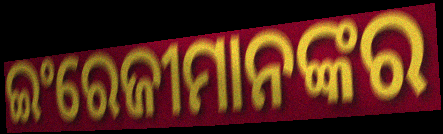
ଇଂରେଜୀମାନଙ୍କର